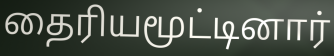
தைரியமூட்டினார்